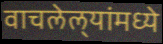
वाचलेल्यांमध्ये